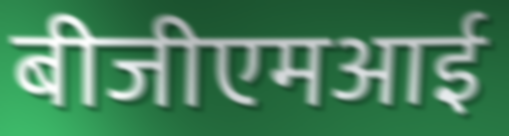
बीजीएमआई